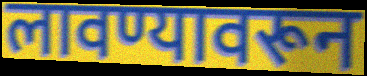
लावण्यावरून